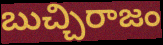
బుచ్చిరాజం